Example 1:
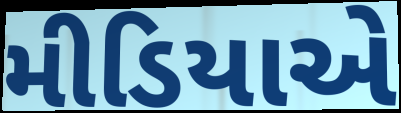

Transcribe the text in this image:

મીડિયાએ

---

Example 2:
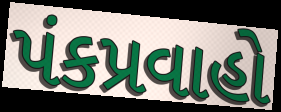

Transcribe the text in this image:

પંકપ્રવાહો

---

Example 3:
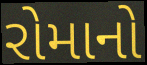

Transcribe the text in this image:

રોમાનો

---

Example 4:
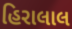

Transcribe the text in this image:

હિરાલાલ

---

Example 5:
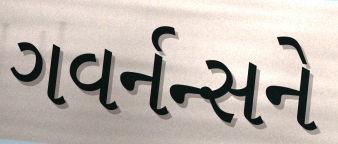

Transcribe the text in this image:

ગવર્નન્સને